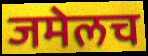
जमेलच